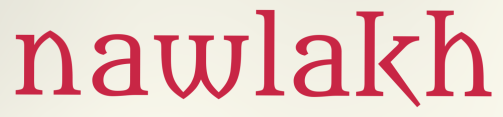
nawlakh